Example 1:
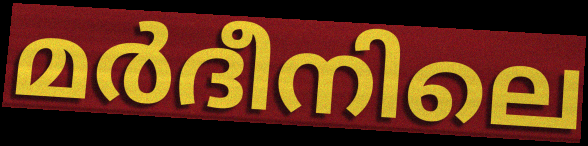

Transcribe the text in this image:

മർദീനിലെ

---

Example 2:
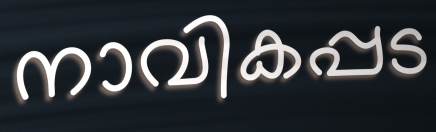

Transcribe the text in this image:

നാവികപ്പട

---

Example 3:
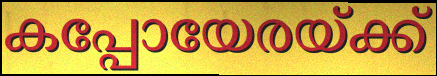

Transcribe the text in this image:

കപ്പോയേരയ്ക്ക്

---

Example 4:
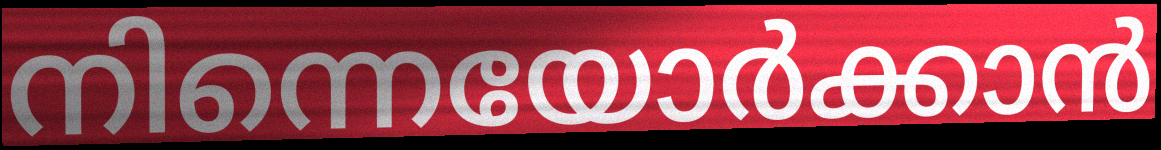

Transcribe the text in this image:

നിന്നെയോർക്കാൻ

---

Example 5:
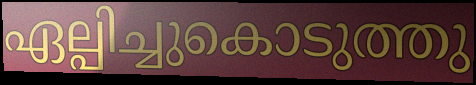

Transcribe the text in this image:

ഏല്പിച്ചുകൊടുത്തു